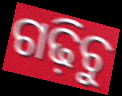
ଗଢ଼ିଚୁ